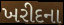
ખરીદના